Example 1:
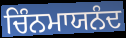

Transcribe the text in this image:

ਚਿੰਨਮਾਯਨੰਦ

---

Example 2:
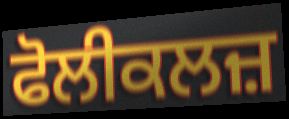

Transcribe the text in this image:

ਫੋਲੀਕਲਜ਼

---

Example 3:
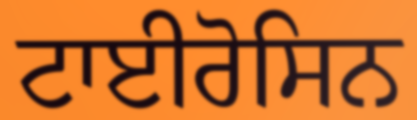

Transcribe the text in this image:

ਟਾਈਰੋਸਿਨ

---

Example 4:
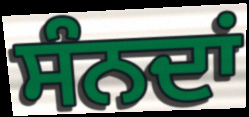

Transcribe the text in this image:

ਸੰਨਦਾਂ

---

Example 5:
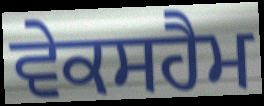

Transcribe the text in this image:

ਵੇਕਸਹੈਮ